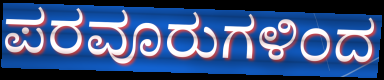
ಪರವೂರುಗಳಿಂದ